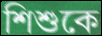
শিশুকে